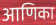
आणिका